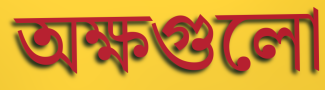
অক্ষগুলো